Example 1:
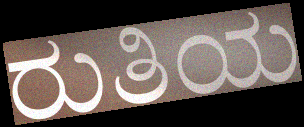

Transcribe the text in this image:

ರುತಿಯ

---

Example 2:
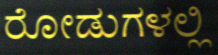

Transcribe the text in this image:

ರೋಡುಗಳಲ್ಲಿ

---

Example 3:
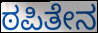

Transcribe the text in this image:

ಠಪಿತೇನ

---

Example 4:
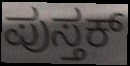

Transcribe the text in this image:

ಪುಸ್ತಕ್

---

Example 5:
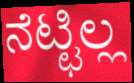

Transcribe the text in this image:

ನೆಟ್ಟಿಲ್ಲ